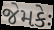
જેમકેઃ